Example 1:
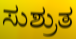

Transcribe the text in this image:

ಸುಶ್ರುತ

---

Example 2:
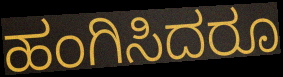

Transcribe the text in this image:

ಹಂಗಿಸಿದರೂ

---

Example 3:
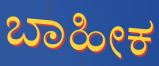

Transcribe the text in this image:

ಬಾಹೀಕ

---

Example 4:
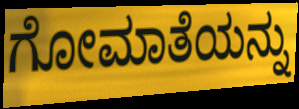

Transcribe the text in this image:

ಗೋಮಾತೆಯನ್ನು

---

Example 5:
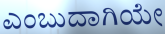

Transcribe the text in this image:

ಎಂಬುದಾಗಿಯೇ